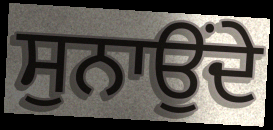
ਸੁਨਾਉਂਦੇ